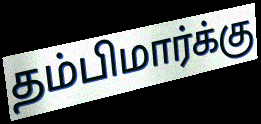
தம்பிமார்க்கு